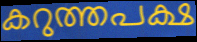
കറുത്തപക്ഷ